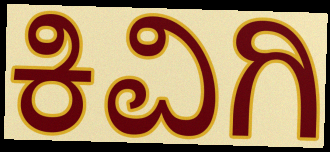
ಕಿವಿಗಿ